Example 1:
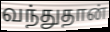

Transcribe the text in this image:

வந்துதான்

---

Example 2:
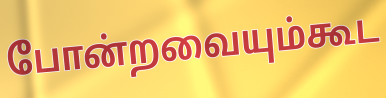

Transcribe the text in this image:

போன்றவையும்கூட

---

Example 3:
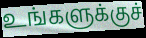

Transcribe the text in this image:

உங்களுக்குச்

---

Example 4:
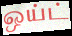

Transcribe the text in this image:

ஒய்ட்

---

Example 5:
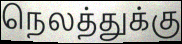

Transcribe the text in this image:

நெலத்துக்கு